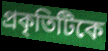
প্রকৃতিটিকে